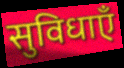
सुविधाएँ